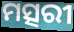
ମତ୍ସରୀ